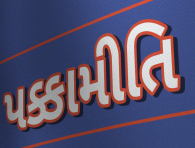
પક્કામીતિ